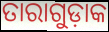
ତାରାଗୁଡ଼ାକ